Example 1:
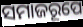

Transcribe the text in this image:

ସମାଜରୂପେ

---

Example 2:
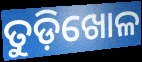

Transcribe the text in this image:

ତୁଡ଼ିଖୋଳ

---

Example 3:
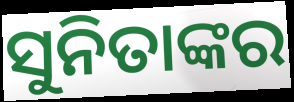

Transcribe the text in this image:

ସୁନିତାଙ୍କର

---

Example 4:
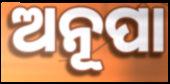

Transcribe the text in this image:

ଅନୂପା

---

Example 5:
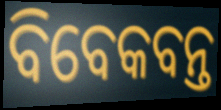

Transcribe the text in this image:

ବିବେକବନ୍ତ